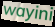
wayini